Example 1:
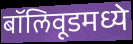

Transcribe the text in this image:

बॉलिवूडमध्ये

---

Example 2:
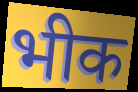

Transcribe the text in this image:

भीक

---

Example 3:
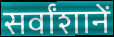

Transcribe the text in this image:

सर्वांशानें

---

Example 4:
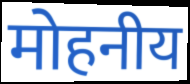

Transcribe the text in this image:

मोहनीय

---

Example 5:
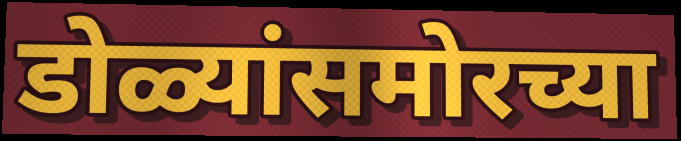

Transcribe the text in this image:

डोळ्यांसमोरच्या